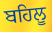
ਬਹਿਲੂ